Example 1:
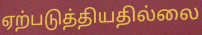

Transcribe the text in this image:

ஏற்படுத்தியதில்லை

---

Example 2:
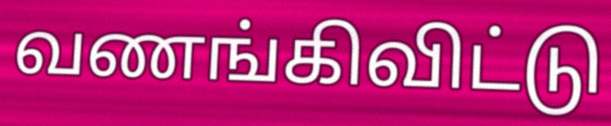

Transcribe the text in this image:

வணங்கிவிட்டு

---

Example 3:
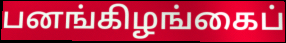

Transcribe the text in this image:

பனங்கிழங்கைப்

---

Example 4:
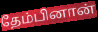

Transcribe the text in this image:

தேம்பினான்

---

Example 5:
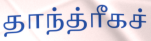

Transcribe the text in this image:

தாந்த்ரீகச்